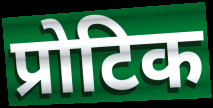
प्रोटिक